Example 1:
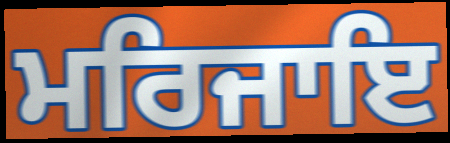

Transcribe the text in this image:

ਮਰਿਜਾਇ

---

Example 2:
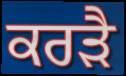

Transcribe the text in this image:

ਕਰੜੈ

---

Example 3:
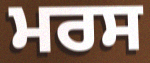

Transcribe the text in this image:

ਮਰਸ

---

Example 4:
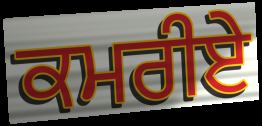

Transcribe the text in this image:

ਕਮਰੀਏ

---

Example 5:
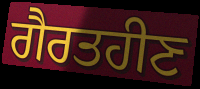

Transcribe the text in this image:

ਗੈਰਤਹੀਣ